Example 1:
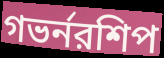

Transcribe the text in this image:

গভর্নরশিপ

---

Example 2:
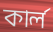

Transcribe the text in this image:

কার্ল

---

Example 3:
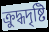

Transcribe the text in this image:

ক্রুদ্ধদৃষ্টি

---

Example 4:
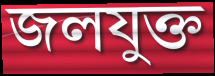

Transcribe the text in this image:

জলযুক্ত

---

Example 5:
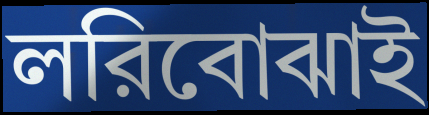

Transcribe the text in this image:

লরিবোঝাই